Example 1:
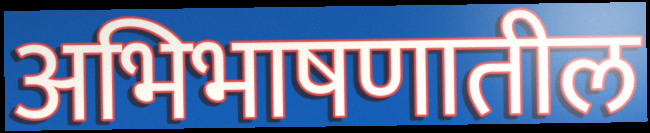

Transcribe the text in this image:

अभिभाषणातील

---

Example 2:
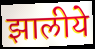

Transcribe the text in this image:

झालीये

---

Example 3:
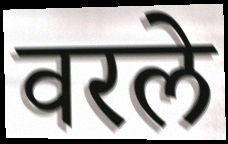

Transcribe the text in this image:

वरले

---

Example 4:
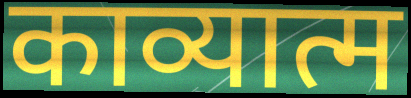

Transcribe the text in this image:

काव्यात्म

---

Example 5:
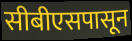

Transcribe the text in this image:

सीबीएसपासून